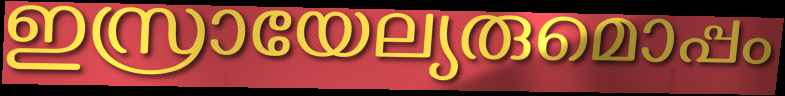
ഇസ്രായേല്യരുമൊപ്പം